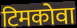
टिमकोवा